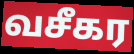
வசீகர